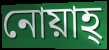
নোয়াহ্